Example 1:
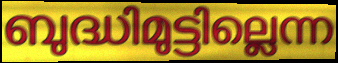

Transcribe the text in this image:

ബുദ്ധിമുട്ടില്ലെന്ന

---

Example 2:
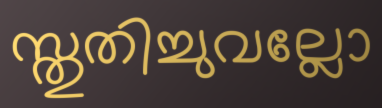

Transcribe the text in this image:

സ്തുതിച്ചുവല്ലോ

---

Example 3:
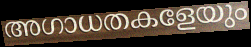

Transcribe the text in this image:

അഗാധതകളേയും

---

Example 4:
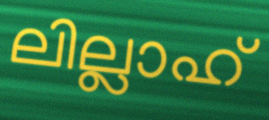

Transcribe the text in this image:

ലില്ലാഹ്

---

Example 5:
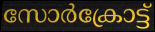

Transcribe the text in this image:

സോർക്രോട്ട്